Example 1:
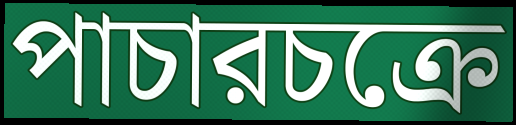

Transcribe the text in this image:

পাচারচক্রে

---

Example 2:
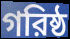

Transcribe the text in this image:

গরিষ্ঠ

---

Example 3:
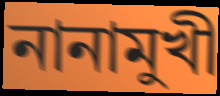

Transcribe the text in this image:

নানামুখী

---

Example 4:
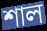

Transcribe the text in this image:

শাল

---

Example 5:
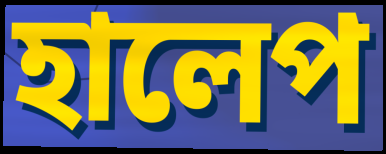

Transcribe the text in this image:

হালেপ